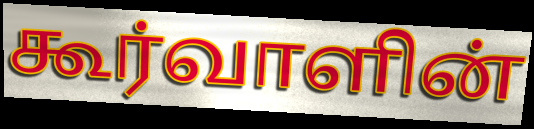
கூர்வாளின்